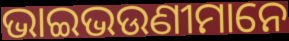
ଭାଇଭଉଣୀମାନେ